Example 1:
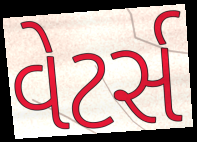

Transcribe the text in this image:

વેટર્સ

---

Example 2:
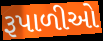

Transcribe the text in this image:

રૂપાળીઓ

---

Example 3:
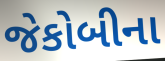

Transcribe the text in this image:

જેકોબીના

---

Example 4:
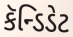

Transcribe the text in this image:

કૅન્ડિડેટ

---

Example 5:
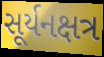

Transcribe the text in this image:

સૂર્યનક્ષત્ર